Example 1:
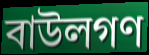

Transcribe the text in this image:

বাউলগণ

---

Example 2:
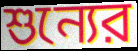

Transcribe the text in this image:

শুন্যের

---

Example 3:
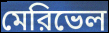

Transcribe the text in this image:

মেরিভেল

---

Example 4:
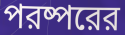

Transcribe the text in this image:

পরষ্পরের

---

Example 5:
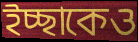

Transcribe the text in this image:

ইচ্ছাকেও